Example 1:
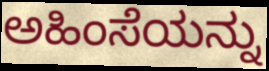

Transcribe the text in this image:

ಅಹಿಂಸೆಯನ್ನು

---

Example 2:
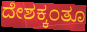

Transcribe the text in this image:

ದೇಶಕ್ಕಂತೂ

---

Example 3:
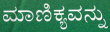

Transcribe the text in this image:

ಮಾಣಿಕ್ಯವನ್ನು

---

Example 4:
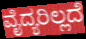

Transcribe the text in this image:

ವೈದ್ಯರಿಲ್ಲದೆ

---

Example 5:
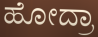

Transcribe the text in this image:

ಹೋದ್ರಾ